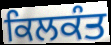
ਕਿਲਕੰਤ